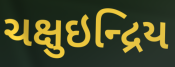
ચક્ષુઇન્દ્રિય